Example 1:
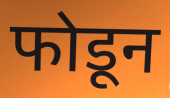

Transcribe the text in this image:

फोडून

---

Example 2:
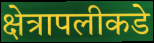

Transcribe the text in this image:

क्षेत्रापलीकडे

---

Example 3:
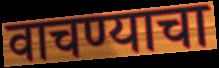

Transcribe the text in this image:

वाचण्याचा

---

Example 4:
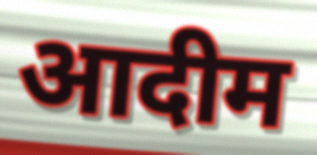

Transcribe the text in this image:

आदीम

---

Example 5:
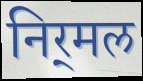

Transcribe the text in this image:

निर्मल